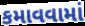
કમાવવામાં